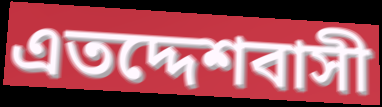
এতদ্দেশবাসী